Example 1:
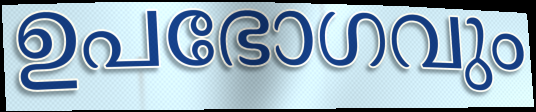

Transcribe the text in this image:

ഉപഭോഗവും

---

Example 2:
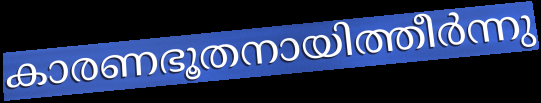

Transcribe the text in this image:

കാരണഭൂതനായിത്തീർന്നു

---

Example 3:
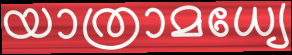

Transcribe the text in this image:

യാത്രാമധ്യേ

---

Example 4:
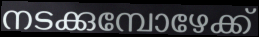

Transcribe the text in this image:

നടക്കുമ്പോഴേക്ക്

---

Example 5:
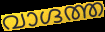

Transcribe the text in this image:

വാഗ്ദത്ത